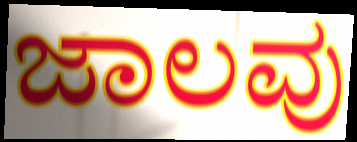
ಜಾಲವು